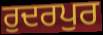
ਰੁਦਰਪੁਰ